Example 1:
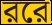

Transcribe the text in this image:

ররে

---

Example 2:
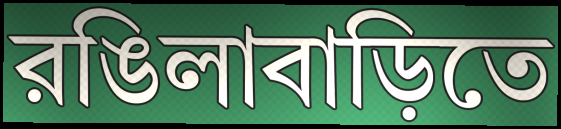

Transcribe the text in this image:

রঙিলাবাড়িতে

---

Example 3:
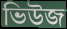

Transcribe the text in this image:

ভিউজ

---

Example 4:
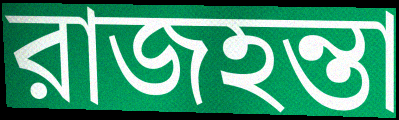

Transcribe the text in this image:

রাজহন্তা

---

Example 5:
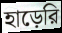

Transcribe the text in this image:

হাড়েরি